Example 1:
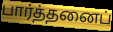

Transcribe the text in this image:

பார்த்தனைப்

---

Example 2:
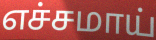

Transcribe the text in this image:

எச்சமாய்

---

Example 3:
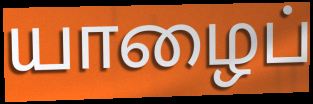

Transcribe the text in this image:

யாழைப்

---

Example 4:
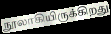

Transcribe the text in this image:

நூலாகியிருக்கிறது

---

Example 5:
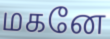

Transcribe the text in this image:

மகனே